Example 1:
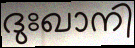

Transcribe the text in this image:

ദുഃഖാനി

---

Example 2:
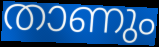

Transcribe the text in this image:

താണും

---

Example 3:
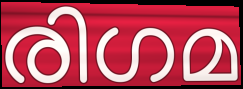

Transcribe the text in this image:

രിഗമ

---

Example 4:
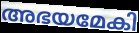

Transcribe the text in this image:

അഭയമേകി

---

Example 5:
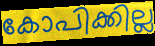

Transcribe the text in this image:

കോപിക്കില്ല